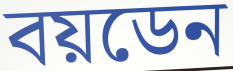
বয়ডেন